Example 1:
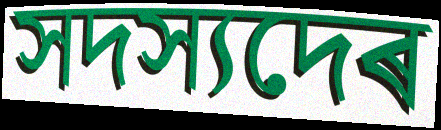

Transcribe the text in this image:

সদস্যদেৰ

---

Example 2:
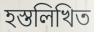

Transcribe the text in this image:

হস্তলিখিত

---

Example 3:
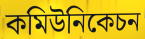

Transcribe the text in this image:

কমিউনিকেচন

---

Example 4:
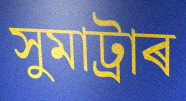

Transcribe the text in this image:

সুমাট্ৰাৰ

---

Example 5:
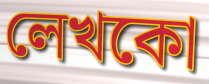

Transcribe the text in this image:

লেখকো